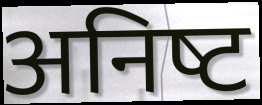
अनिष्‍ट